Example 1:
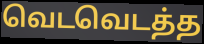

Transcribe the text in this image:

வெடவெடத்த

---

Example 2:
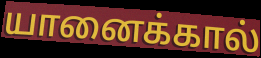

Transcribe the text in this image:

யானைக்கால்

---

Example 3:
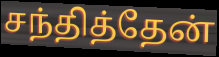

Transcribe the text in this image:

சந்தித்தேன்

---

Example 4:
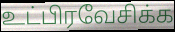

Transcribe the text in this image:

உட்பிரவேசிக்க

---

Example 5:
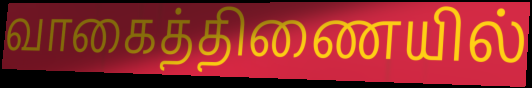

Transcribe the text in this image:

வாகைத்திணையில்